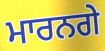
ਮਾਰਨਗੇ